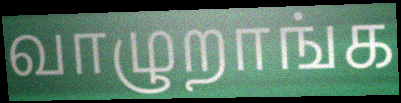
வாழுறாங்க